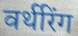
वर्थरिंग